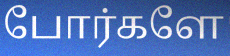
போர்களே